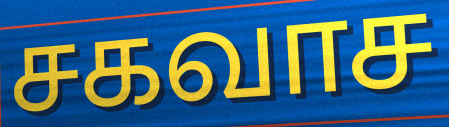
சகவாச